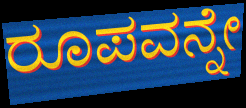
ರೂಪವನ್ನೇ